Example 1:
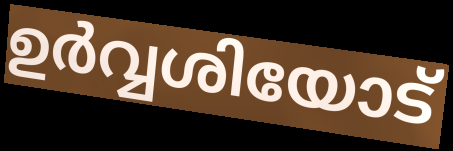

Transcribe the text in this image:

ഉർവ്വശിയോട്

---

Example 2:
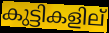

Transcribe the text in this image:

കുട്ടികളില്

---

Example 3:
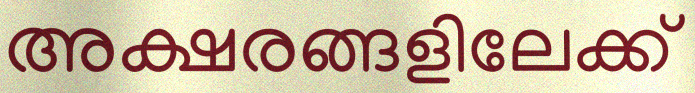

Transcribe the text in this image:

അക്ഷരങ്ങളിലേക്ക്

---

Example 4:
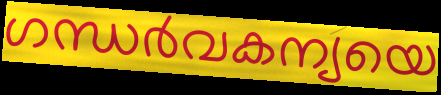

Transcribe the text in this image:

ഗന്ധർവകന്യയെ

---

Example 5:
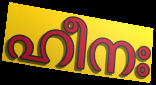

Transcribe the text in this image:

ഹീനഃ